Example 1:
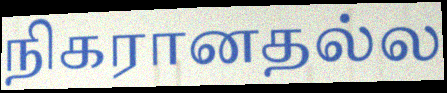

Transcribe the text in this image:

நிகரானதல்ல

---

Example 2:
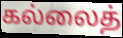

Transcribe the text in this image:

கல்லைத்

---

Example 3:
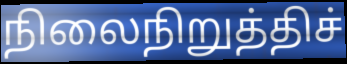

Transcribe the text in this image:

நிலைநிறுத்திச்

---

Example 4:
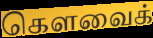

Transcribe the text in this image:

கௌவைக்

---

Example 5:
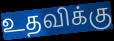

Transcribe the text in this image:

உதவிக்கு